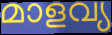
മാളവ്യ